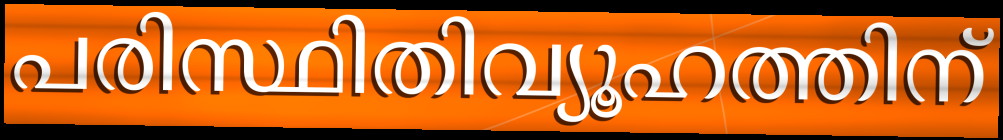
പരിസ്ഥിതിവ്യൂഹത്തിന്